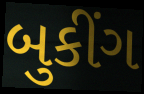
બુકીંગ